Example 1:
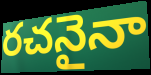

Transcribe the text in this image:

రచనైనా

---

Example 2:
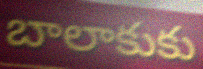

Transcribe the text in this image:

బాలాకుకు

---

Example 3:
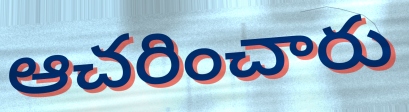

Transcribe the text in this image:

ఆచరించారు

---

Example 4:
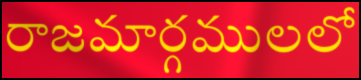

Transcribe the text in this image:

రాజమార్గములలో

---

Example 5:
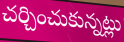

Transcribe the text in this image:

చర్చించుకున్నట్లు